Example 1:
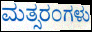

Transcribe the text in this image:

ಮತ್ಸರಂಗಳು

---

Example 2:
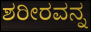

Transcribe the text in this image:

ಶರೀರವನ್ನ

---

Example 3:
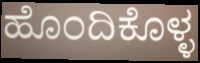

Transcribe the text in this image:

ಹೊಂದಿಕೊಳ್ಳ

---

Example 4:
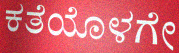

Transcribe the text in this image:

ಕತೆಯೊಳಗೇ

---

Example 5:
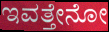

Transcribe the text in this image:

ಇವತ್ತೇನೋ